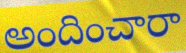
అందించారా